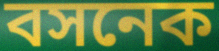
বসনেক